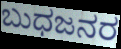
ಬುಧಜನರ